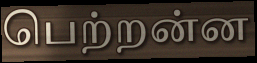
பெற்றன்ன